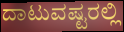
ದಾಟುವಷ್ಟರಲ್ಲಿ